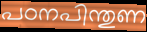
പഠനപിന്തുണ